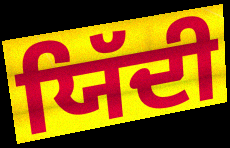
ਯਿੱਦੀ